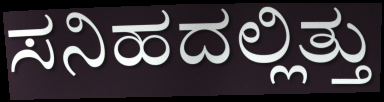
ಸನಿಹದಲ್ಲಿತ್ತು